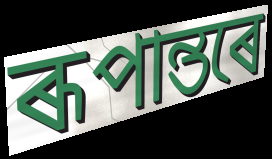
ৰূপান্তৰে